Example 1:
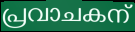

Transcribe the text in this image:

പ്രവാചകന്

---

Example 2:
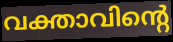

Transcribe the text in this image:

വക്താവിന്റെ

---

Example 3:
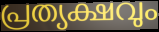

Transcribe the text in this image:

പ്രത്യക്ഷവും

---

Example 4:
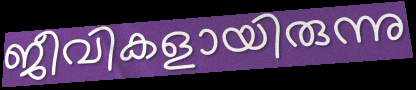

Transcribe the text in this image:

ജീവികളായിരുന്നു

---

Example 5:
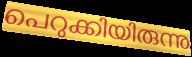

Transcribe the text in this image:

പെറുക്കിയിരുന്നു